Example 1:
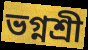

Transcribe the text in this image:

ভগ্নশ্রী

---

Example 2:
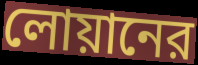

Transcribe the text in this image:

লোয়ানের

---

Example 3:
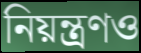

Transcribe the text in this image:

নিয়ন্ত্রণও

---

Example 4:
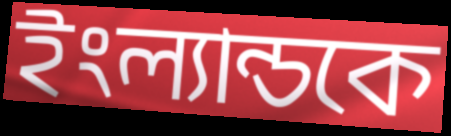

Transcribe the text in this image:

ইংল্যান্ডকে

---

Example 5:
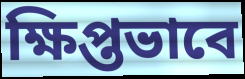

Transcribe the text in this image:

ক্ষিপ্তভাবে